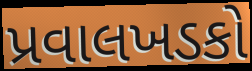
પ્રવાલખડકો